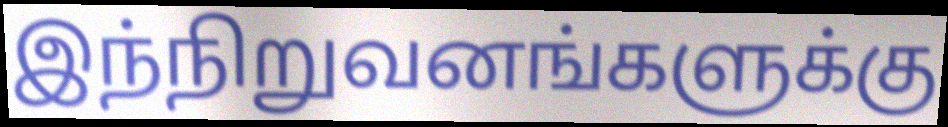
இந்நிறுவனங்களுக்கு